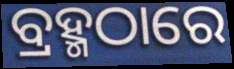
ବ୍ରହ୍ମଠାରେ